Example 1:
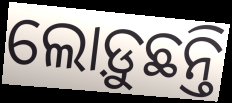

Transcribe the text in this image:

ଲୋଡ଼ୁଛନ୍ତି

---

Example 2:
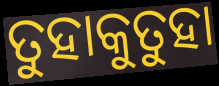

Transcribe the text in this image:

ତୁହାକୁତୁହା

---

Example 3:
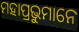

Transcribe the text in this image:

ମହାପ୍ରଭୁମାନେ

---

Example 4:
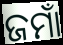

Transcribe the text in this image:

ଜମାଁ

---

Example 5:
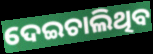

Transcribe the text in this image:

ଦେଇଚାଲିଥିବ